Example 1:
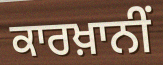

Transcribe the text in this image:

ਕਾਰਖ਼ਾਨੀਂ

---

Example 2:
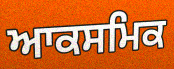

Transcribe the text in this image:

ਆਕਸਮਿਕ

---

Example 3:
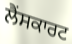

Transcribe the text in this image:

ਲੈਂਸਕਾਰਟ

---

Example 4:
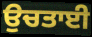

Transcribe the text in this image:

ਉਚਤਾਈ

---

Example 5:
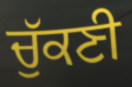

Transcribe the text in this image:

ਚੁੱਕਣੀ